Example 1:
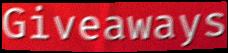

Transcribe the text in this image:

Giveaways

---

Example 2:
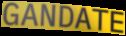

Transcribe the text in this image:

GANDATE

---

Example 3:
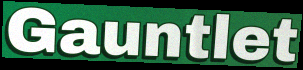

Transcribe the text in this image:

Gauntlet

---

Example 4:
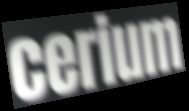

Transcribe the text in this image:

cerium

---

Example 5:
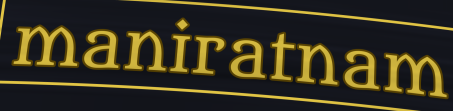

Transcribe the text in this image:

maniratnam